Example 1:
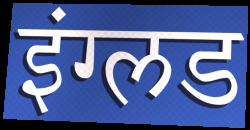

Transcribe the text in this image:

इंग्लड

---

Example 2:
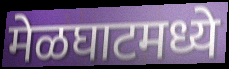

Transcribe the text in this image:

मेळघाटमध्ये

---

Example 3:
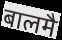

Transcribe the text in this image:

बालमै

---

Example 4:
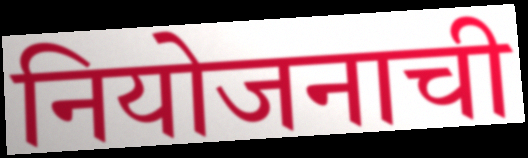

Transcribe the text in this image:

नियोजनाची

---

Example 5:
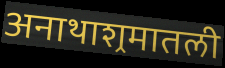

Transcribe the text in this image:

अनाथाश्रमातली